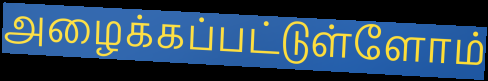
அழைக்கப்பட்டுள்ளோம்